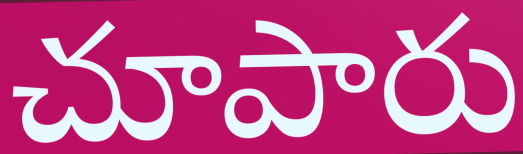
చూపారు